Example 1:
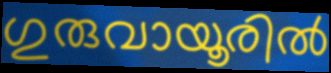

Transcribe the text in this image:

ഗുരുവായൂരിൽ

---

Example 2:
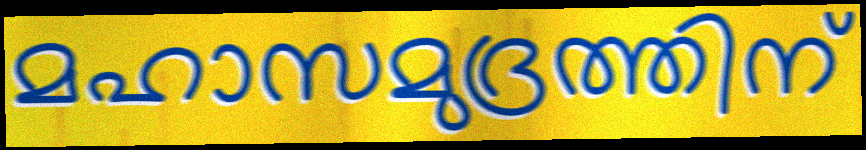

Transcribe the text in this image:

മഹാസമുദ്രത്തിന്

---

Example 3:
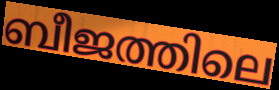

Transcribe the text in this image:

ബീജത്തിലെ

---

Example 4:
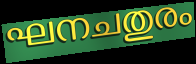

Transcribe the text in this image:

ഘനചതുരം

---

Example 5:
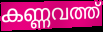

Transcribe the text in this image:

കണ്ണവത്ത്